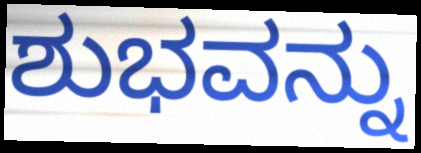
ಶುಭವನ್ನು